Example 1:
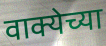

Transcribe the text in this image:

वाक्येच्या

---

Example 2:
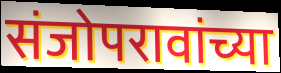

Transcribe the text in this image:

संजोपरावांच्या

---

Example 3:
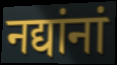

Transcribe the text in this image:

नद्यांनां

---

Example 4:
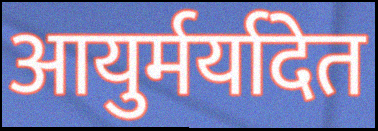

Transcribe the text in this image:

आयुर्मर्यादेत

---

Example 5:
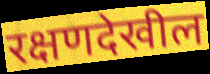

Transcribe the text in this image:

रक्षणदेखील